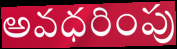
అవధరింపు